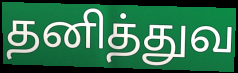
தனித்துவ